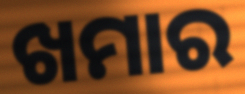
ଖମାର